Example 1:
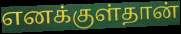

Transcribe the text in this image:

எனக்குள்தான்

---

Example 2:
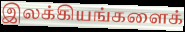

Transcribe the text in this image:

இலக்கியங்களைக்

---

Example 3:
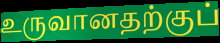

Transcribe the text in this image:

உருவானதற்குப்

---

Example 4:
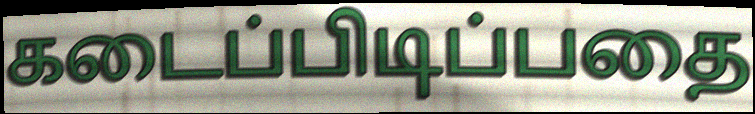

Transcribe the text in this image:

கடைப்பிடிப்பதை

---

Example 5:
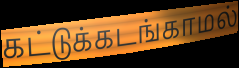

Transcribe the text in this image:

கட்டுக்கடங்காமல்